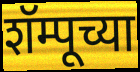
शॅम्पूच्या